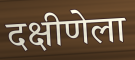
दक्षीणेला